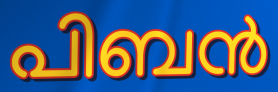
പിബൻ